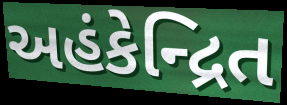
અહંકેન્દ્રિત